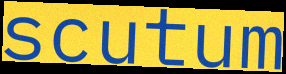
scutum